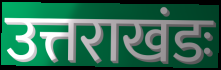
उत्तराखंडः